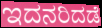
ಇದನರಿದಡೆ